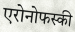
एरोनोफस्की